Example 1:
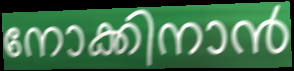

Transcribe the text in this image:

നോക്കിനാൻ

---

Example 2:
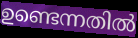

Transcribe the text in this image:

ഉണ്ടെന്നതിൽ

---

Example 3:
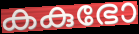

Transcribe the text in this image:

കകുഭോ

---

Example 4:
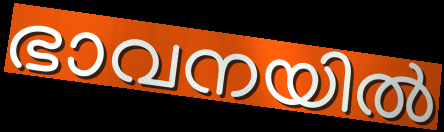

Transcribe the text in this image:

ഭാവനയിൽ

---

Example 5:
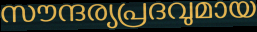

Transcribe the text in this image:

സൗന്ദര്യപ്രദവുമായ